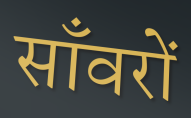
साँवरों